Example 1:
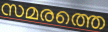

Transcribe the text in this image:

സമരത്തെ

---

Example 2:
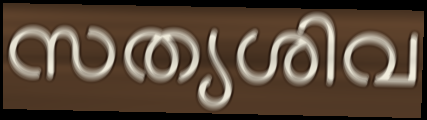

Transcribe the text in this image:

സത്യശിവ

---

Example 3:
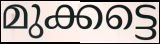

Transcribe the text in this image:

മുക്കട്ടെ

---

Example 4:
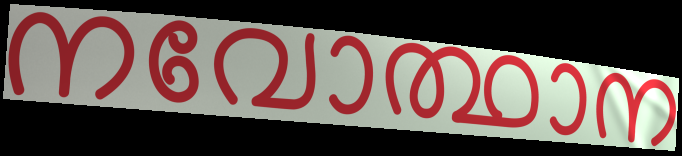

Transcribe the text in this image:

നവോത്ഥാന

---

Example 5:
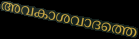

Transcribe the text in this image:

അവകാശവാദത്തെ